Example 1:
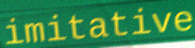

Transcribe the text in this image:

imitative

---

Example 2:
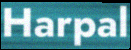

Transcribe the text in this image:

Harpal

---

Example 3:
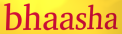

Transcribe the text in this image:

bhaasha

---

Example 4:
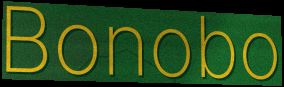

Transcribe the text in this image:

Bonobo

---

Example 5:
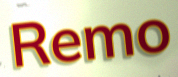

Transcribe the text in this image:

Remo